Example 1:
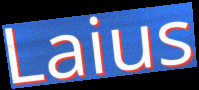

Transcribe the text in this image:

Laius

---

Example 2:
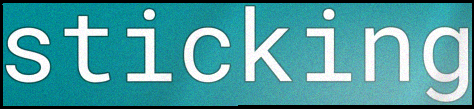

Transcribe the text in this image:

sticking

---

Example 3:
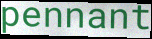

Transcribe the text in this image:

pennant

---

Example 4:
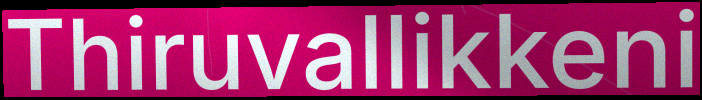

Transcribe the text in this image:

Thiruvallikkeni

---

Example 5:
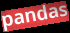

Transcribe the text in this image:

pandas